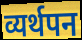
व्यर्थपन